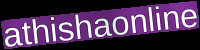
athishaonline